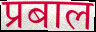
प्रबाल